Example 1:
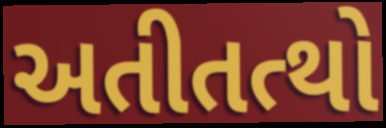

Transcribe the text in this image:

અતીતત્થો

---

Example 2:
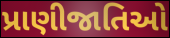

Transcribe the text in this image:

પ્રાણીજાતિઓ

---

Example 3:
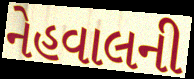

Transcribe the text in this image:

નેહવાલની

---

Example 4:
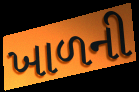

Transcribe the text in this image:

ખાળની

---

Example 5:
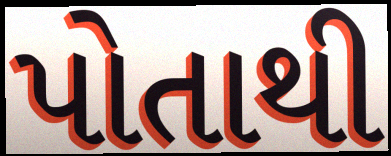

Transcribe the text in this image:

પોતાથી